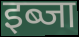
इब्जा